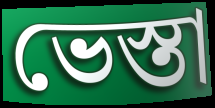
ভেস্তা